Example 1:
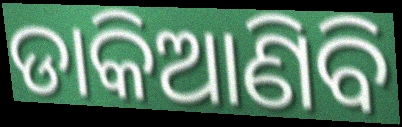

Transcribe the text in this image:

ଡାକିଆଣିବି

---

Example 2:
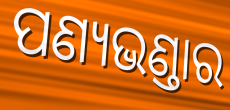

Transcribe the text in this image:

ପଣ୍ୟଭଣ୍ଡାର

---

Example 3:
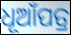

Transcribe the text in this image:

ଧୂଆଁପତ୍ର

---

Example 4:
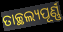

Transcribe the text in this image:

ତାଚ୍ଛଲ୍ୟପୂର୍ଣ୍ଣ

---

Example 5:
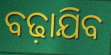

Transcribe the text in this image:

ବଢ଼ାଯିବ